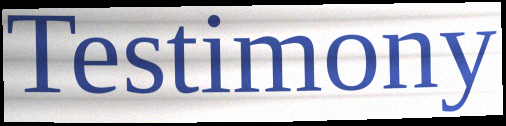
Testimony